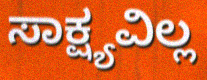
ಸಾಕ್ಷ್ಯವಿಲ್ಲ